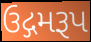
ઉદ્ગમરૂપ